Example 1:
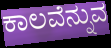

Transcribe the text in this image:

ಕಾಲವೆನ್ನುವ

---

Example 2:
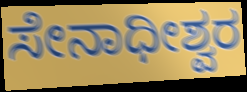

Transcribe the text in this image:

ಸೇನಾಧೀಶ್ವರ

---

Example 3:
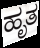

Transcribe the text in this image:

ಹೃತ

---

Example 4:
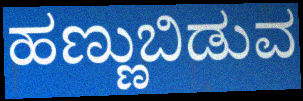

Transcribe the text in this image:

ಹಣ್ಣುಬಿಡುವ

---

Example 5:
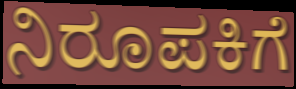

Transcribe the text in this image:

ನಿರೂಪಕಿಗೆ